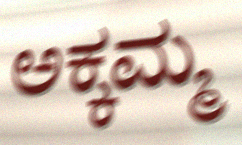
ಅಕ್ಕಮ್ಮ